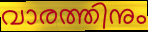
വാരത്തിനും